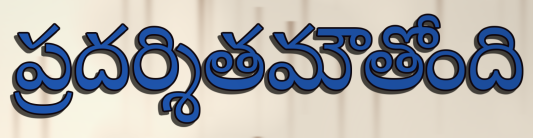
ప్రదర్శితమౌతోంది